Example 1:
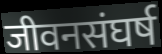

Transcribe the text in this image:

जीवनसंघर्ष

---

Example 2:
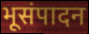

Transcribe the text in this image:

भूसंपादन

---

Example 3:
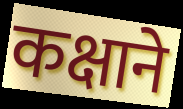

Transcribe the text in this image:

कक्षाने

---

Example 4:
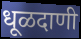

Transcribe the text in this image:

धूळदाणी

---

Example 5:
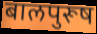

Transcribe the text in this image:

बालपुरूष